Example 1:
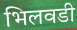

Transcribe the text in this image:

भिलवडी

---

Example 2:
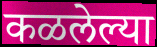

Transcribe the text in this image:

कळलेल्या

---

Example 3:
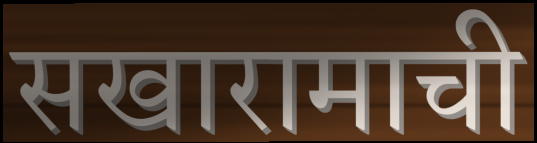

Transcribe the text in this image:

सखारामाची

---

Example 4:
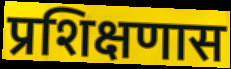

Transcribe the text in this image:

प्रशिक्षणास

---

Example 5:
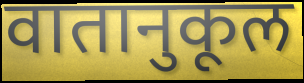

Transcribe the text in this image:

वातानुकूल